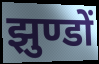
झुण्डों